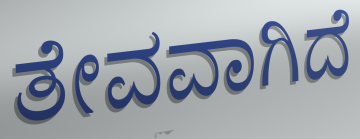
ತೇವವಾಗಿದೆ